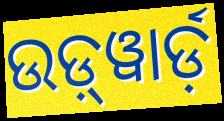
ଉଡ଼୍‍ୱାର୍ଡ଼